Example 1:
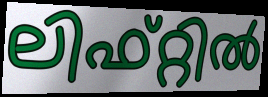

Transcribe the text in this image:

ലിഫ്റ്റിൽ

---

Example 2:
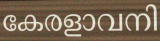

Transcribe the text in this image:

കേരളാവനി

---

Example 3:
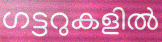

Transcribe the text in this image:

ഗട്ടറുകളിൽ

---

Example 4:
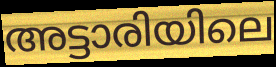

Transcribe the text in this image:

അട്ടാരിയിലെ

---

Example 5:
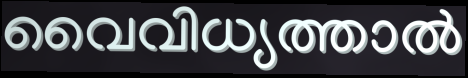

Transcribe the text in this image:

വൈവിധ്യത്താൽ